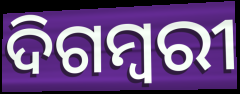
ଦିଗମ୍ୱରୀ